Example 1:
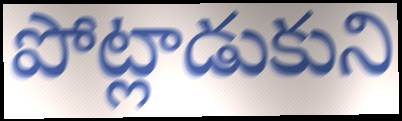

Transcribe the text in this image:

పోట్లాడుకుని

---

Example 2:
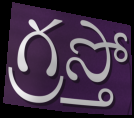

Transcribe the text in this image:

గ్రస్తో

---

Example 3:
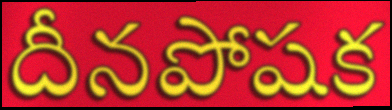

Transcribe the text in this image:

దీనపోషక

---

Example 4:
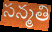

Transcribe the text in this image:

సన్మతి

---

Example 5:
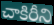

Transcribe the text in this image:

చాకిరీని